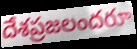
దేశప్రజలందరూ